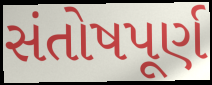
સંતોષપૂર્ણ